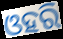
ଓହରି